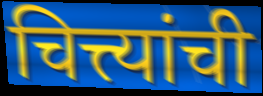
चित्त्यांची